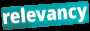
relevancy